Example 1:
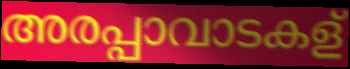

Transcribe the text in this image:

അരപ്പാവാടകള്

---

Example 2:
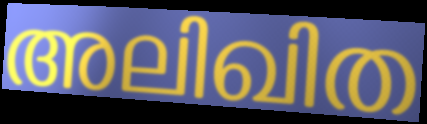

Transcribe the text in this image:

അലിഖിത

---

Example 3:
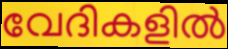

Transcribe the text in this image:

വേദികളിൽ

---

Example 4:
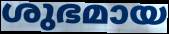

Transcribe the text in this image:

ശുഭമായ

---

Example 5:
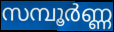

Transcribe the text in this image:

സമ്പൂർണ്ണ